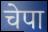
चेपा